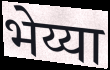
भेय्या